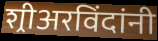
श्रीअरविंदांनी